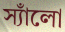
স্যাঁলো